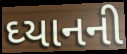
ઘ્યાનની